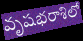
వృషభరాశిలో